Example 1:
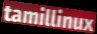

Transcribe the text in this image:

tamillinux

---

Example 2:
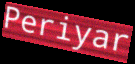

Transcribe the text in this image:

Periyar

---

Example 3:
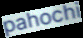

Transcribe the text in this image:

pahochi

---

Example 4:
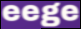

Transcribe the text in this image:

eege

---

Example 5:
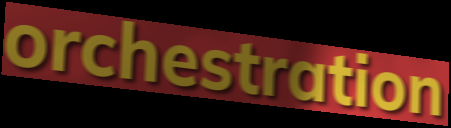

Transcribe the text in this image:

orchestration